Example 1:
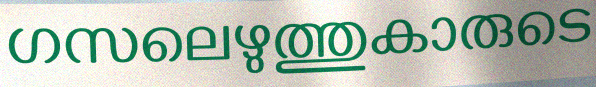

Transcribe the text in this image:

ഗസലെഴുത്തുകാരുടെ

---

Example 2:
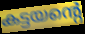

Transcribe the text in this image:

കട്ടയന്റെ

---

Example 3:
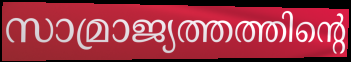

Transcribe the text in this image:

സാമ്രാജ്യത്തത്തിന്റെ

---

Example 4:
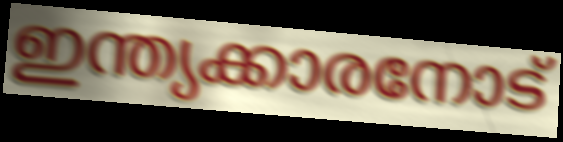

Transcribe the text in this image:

ഇന്ത്യക്കാരനോട്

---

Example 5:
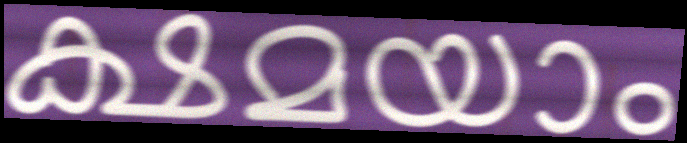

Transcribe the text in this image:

ക്ഷമയാം